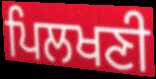
ਪਿਲਖਣੀ